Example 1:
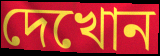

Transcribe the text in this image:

দেখোন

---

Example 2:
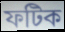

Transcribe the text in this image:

ফটিক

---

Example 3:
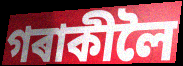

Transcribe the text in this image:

গৰাকীলৈ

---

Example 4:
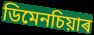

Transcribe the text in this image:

ডিমেনচিয়াৰ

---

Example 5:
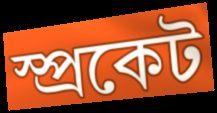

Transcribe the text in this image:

স্প্ৰকেট